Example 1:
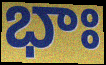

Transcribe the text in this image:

భాః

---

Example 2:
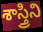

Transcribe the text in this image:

శాస్త్రిని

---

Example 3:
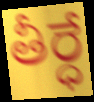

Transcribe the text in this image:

తీర్ధే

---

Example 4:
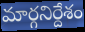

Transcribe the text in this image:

మార్గనిర్దేశం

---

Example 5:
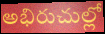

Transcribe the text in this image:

అభిరుచుల్లో